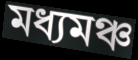
মধ্যমঞ্চ